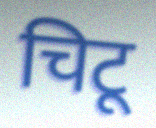
चिटू